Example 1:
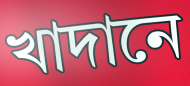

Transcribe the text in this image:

খাদানে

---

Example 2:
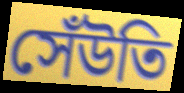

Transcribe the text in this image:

সেঁউতি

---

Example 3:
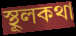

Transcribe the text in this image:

স্থূলকথা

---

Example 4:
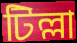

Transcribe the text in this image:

টিল্লা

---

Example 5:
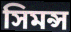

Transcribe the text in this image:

সিমন্স